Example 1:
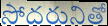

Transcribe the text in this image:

సోదరునితో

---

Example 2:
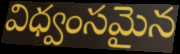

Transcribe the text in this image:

విధ్వంసమైన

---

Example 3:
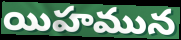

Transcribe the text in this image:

యిహమున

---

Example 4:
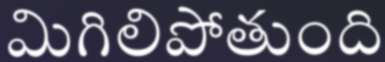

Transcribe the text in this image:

మిగిలిపోతుంది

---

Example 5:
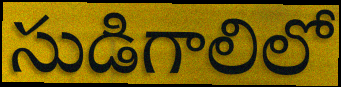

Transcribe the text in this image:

సుడిగాలిలో